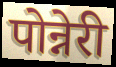
पोन्नेरी